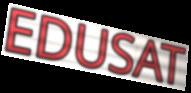
EDUSAT